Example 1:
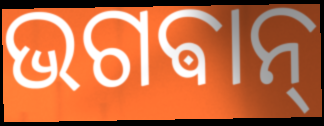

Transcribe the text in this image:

ଭଗଵାନ୍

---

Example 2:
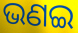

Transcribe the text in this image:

ଭଣଇ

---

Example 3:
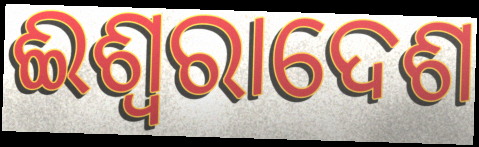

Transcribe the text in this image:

ଈଶ୍ୱରାଦେଶ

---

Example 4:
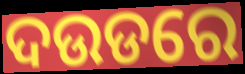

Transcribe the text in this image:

ଦଉଡରେ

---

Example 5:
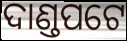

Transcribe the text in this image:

ଦାଣ୍ଡପଟେ